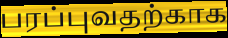
பரப்புவதற்காக